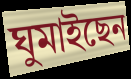
ঘুমাইছেন